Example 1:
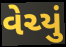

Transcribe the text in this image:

વેચ્યું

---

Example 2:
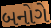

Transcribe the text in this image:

બનોગે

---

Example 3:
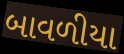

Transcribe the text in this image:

બાવળીયા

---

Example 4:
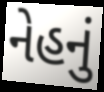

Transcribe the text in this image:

નેહનું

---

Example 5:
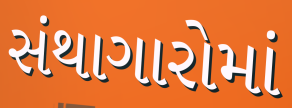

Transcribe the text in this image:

સંથાગારોમાં